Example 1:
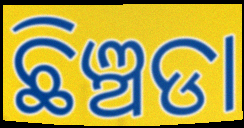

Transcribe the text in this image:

ଛିଞ୍ଚଡା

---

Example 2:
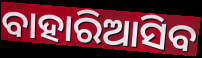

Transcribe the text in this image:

ବାହାରିଆସିବ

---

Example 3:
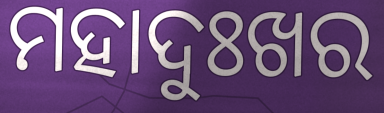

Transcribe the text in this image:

ମହାଦୁଃଖର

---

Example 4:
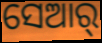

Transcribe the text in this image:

ସେଆର୍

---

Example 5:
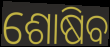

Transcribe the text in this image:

ଶୋଷିବ